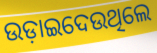
ଉଡ଼ାଇଦେଉଥିଲେ